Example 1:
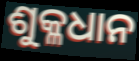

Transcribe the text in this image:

ଶୁକ୍ଳଧାନ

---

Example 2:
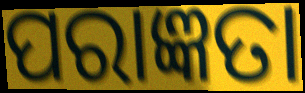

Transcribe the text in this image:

ପରାଜ୍ଞତା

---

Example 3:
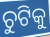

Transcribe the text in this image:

ଚୁଟିକୁ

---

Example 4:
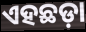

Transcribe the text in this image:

ଏହଛଡ଼ା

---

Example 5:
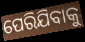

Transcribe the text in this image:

ପେରିଯିବାକୁ